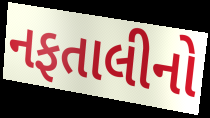
નફતાલીનો